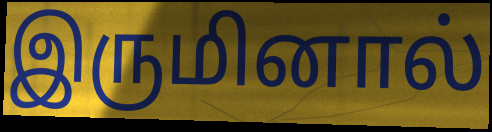
இருமினால்